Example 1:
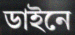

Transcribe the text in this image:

ডাইনে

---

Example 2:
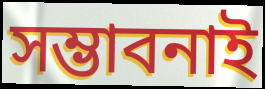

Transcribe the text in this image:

সম্ভাবনাই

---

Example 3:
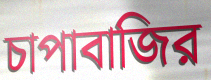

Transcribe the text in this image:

চাপাবাজির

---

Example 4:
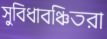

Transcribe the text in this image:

সুবিধাবঞ্চিতরা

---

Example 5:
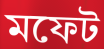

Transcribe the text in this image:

মফেট